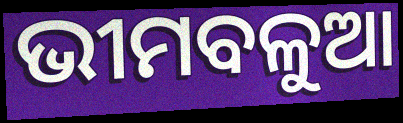
ଭୀମବଳୁଆ